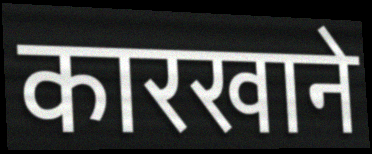
कारखाने